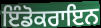
ਇੰਡੋਕਰਾਇਨ